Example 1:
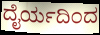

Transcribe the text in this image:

ದೈರ್ಯದಿಂದ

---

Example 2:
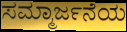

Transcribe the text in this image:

ಸಮ್ಮಾರ್ಜನೆಯ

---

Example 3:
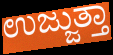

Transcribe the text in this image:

ಉಜ್ಜುತ್ತಾ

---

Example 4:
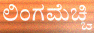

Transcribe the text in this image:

ಲಿಂಗಮೆಚ್ಚಿ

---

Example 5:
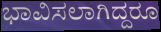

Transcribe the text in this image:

ಭಾವಿಸಲಾಗಿದ್ದರೂ